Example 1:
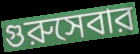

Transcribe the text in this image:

গুরুসেবার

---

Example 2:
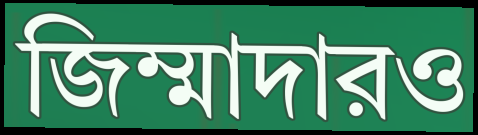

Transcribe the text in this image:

জিম্মাদারও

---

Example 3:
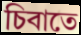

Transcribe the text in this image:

চিবাতে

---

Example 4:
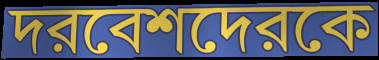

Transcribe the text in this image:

দরবেশদেরকে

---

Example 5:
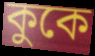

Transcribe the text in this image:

কুকে